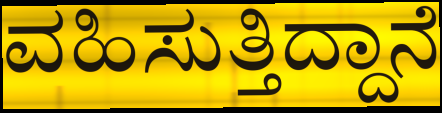
ವಹಿಸುತ್ತಿದ್ದಾನೆ